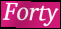
Forty